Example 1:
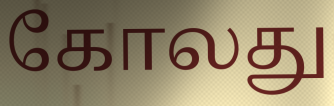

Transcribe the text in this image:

கோலது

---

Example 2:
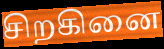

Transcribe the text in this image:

சிறகினை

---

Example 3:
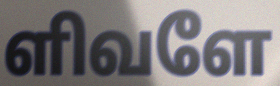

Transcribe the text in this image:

ளிவளே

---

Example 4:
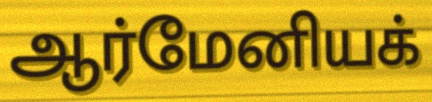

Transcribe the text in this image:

ஆர்மேனியக்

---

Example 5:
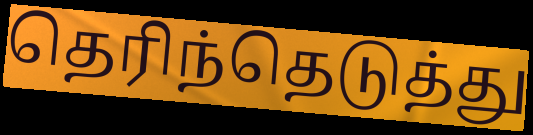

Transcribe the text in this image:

தெரிந்தெடுத்து